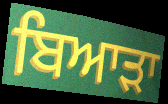
ਬਿਆੜਾ